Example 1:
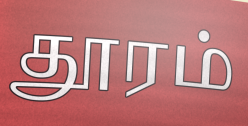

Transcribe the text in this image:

தூரம்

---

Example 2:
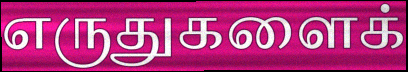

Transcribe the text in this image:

எருதுகளைக்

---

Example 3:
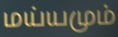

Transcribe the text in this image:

மய்யமும்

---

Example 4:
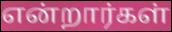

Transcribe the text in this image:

என்றார்கள்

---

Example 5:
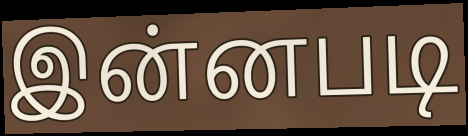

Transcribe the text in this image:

இன்னபடி